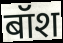
बॉश